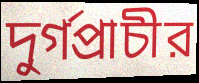
দুর্গপ্রাচীর